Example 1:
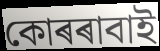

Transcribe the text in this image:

কোৰৰাবাই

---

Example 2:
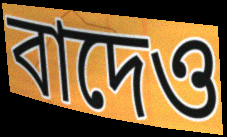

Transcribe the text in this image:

বাদেও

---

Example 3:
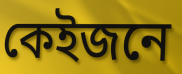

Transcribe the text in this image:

কেইজনে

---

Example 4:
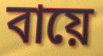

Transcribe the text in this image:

বায়ে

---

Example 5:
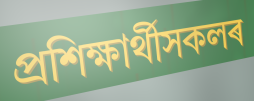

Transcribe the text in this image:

প্ৰশিক্ষাৰ্থীসকলৰ